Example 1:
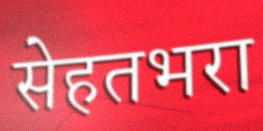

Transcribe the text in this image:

सेहतभरा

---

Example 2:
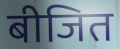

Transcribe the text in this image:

बीजित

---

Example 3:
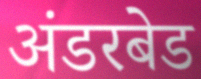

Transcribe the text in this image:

अंडरबेड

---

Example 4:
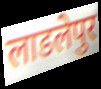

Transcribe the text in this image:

लाडलेपुर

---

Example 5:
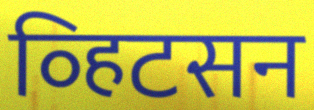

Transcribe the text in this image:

व्हिटसन